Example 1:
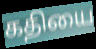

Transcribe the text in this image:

கதியை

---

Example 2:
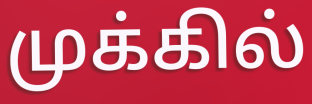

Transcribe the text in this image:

முக்கில்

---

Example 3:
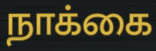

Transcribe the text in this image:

நாக்கை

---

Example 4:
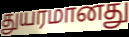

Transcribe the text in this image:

துயரமானது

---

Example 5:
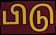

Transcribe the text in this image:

பிடு